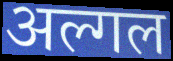
अल्गल